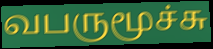
வபருமூச்சு